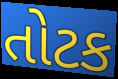
તોટક